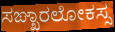
ಸಙ್ಖಾರಲೋಕಸ್ಸ